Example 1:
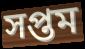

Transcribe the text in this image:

সপ্তম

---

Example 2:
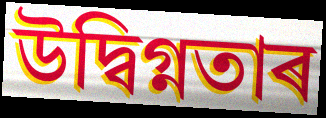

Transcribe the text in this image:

উদ্বিগ্নতাৰ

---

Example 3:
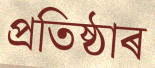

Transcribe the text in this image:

প্ৰতিষ্ঠাৰ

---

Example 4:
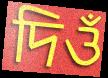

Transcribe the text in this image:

দিওঁ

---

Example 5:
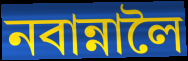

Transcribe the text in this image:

নবান্নালৈ